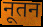
नूतन